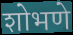
शोभणे